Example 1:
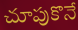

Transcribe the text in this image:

చూపుకొనే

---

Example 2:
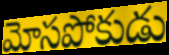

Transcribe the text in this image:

మోసపోకుడు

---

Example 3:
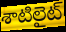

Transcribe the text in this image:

శాటిలైట్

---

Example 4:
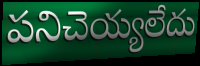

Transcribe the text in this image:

పనిచెయ్యలేదు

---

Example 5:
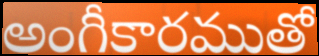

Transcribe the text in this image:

అంగీకారముతో